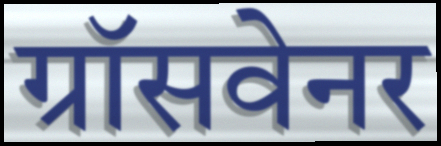
ग्रॉसवेनर